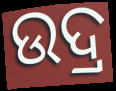
ଉଦ୍ର